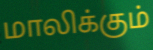
மாலிக்கும்